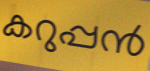
കറുപ്പൻ